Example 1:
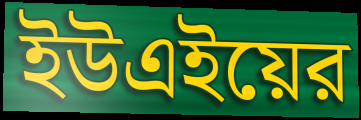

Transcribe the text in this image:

ইউএইয়ের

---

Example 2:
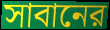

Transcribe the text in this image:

সাবানের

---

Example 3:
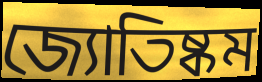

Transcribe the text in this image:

জ্যোতিষ্কম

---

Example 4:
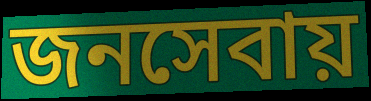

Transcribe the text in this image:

জনসেবায়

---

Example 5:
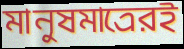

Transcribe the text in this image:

মানুষমাত্রেরই